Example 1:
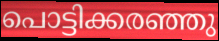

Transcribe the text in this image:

പൊട്ടിക്കരഞ്ഞു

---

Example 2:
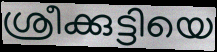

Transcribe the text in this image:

ശ്രീക്കുട്ടിയെ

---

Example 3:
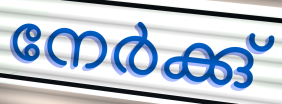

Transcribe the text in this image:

നേർക്കു്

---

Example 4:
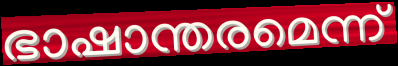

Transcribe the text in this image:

ഭാഷാന്തരമെന്ന്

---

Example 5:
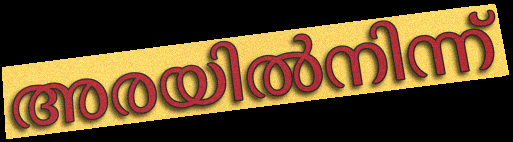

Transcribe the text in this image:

അരയിൽനിന്ന്